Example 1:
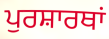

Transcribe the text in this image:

ਪੁਰਸ਼ਾਰਥਾਂ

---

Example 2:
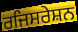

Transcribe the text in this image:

ਰਜਿਸਰੇਸ਼ਨ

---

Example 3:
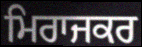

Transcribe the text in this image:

ਮਿਰਾਜਕਰ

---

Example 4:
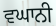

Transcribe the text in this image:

ਵਘਾਨੀ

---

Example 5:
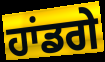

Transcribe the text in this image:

ਹਾਂਡਗੇ